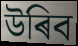
উৰিব